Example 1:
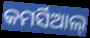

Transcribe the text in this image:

କମର୍ସିଆଲ୍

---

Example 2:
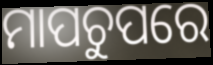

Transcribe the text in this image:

ମାପଚୁପରେ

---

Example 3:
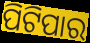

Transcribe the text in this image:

ପିଟିପାର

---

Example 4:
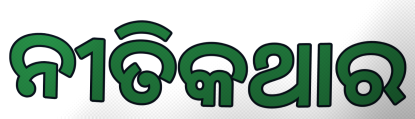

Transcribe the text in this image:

ନୀତିକଥାର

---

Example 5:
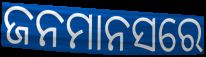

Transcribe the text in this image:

ଜନମାନସରେ